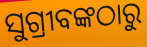
ସୁଗ୍ରୀବଙ୍କଠାରୁ